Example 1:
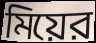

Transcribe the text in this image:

মিয়ের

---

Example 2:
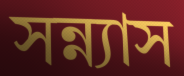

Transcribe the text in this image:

সন্ন্যাস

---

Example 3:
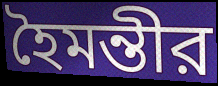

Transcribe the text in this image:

হৈমন্তীর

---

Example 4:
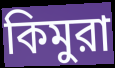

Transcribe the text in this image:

কিমুরা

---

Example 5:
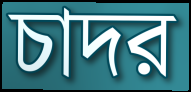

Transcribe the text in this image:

চাদর